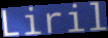
Liril